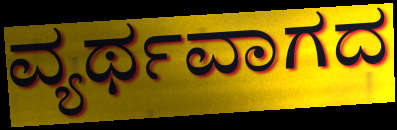
ವ್ಯರ್ಥವಾಗದ